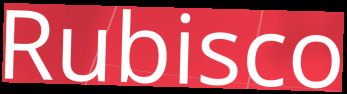
Rubisco